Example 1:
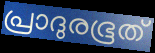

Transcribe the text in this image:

പ്രാദുരഭൂത്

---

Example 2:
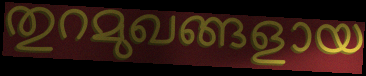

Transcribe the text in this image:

തുറമുഖങ്ങളായ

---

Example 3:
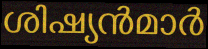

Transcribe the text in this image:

ശിഷ്യൻമാർ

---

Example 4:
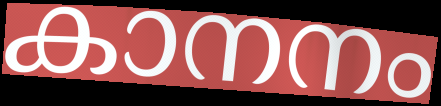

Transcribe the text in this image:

കാനനം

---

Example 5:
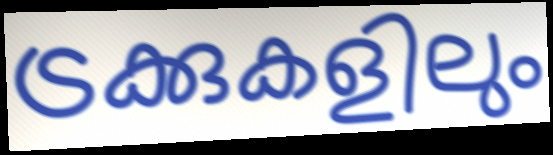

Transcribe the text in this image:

ട്രക്കുകളിലും